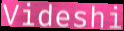
Videshi